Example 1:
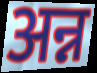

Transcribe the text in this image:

अन्न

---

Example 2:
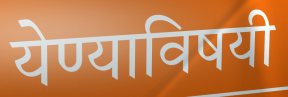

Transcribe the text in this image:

येण्याविषयी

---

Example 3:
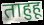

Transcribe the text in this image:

ताहुहू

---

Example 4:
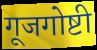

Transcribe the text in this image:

गूजगोष्टी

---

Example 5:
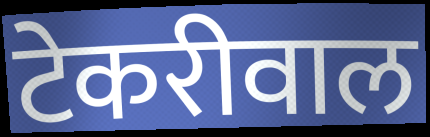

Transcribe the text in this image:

टेकरीवाल